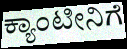
ಕ್ಯಾಂಟೀನಿಗೆ